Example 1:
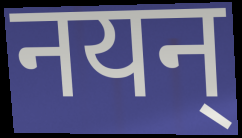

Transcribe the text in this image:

नयन्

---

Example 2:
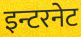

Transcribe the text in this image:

इन्टरनेट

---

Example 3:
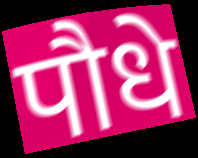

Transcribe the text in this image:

पौधे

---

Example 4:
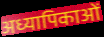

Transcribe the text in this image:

अध्यापिकाओं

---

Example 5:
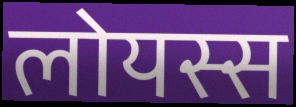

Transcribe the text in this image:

लोयस्स